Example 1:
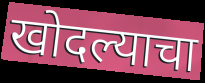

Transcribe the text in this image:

खोदल्याचा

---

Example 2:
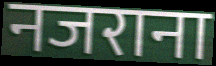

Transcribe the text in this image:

नजराना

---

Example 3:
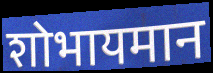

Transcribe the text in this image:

शोभायमान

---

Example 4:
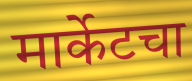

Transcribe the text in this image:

मार्केटचा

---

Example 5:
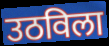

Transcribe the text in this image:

उठविला